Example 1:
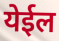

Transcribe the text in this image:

येईल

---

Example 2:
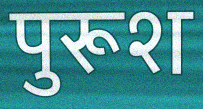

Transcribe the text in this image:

पुरूश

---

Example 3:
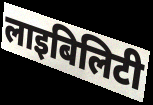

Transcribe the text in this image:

लाइबिलिटी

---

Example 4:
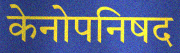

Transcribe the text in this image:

केनोपनिषद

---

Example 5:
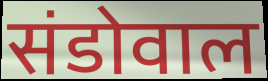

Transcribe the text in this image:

संडोवाल